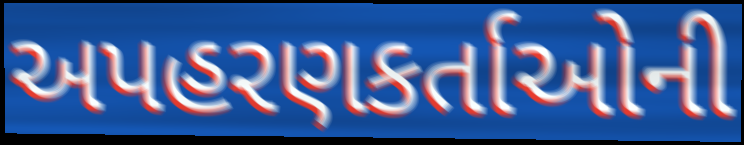
અપહરણકર્તાઓની